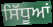
ਸਿੱਧੂਆਂ